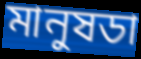
মানুষডা